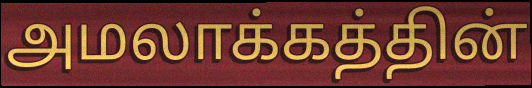
அமலாக்கத்தின்